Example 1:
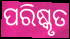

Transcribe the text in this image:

ପରିଷ୍କୃତ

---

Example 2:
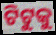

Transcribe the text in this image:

ଟିଟୁକୁ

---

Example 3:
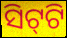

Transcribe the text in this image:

ସିଟ୍‌ଟି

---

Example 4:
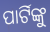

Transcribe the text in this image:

ପାର୍ଟିଙ୍କୁ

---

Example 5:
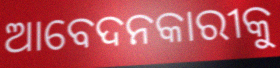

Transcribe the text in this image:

ଆବେଦନକାରୀକୁ